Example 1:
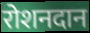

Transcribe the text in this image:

रोशनदान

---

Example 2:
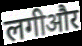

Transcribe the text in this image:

लगीऔर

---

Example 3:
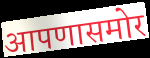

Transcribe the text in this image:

आपणासमोर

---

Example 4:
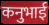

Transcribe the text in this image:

कनुभाई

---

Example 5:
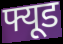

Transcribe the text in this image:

फ्यूड